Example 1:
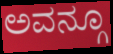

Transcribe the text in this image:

ಅವನ್ಗೂ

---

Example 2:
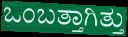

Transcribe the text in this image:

ಒಂಬತ್ತಾಗಿತ್ತು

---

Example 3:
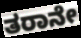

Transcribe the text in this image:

ತರಾನೇ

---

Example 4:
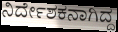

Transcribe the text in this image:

ನಿರ್ದೇಶಕನಾಗಿದ್ದ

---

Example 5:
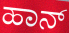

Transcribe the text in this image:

ಹಾನ್